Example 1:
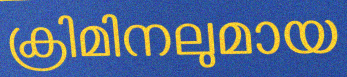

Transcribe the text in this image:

ക്രിമിനലുമായ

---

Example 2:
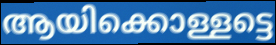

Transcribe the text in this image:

ആയിക്കൊള്ളട്ടെ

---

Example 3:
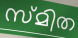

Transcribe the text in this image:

സ്മിത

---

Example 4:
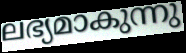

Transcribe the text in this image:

ലഭ്യമാകുന്നു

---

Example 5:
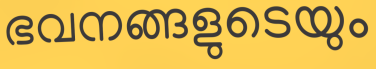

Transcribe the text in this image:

ഭവനങ്ങളുടെയും